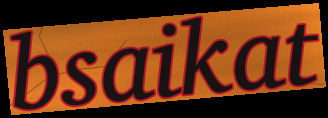
bsaikat